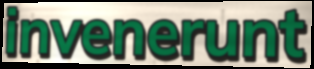
invenerunt